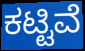
ಕಟ್ಟಿವೆ